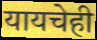
यायचेही